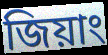
জিয়াং